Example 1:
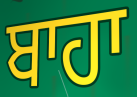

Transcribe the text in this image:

ਬਾਹਾ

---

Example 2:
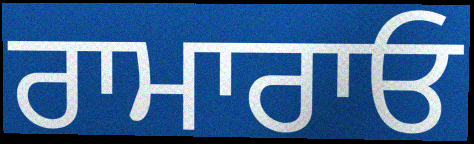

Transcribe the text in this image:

ਰਾਮਾਰਾਓ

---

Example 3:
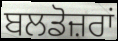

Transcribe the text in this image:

ਬਲਡੋਜ਼ਰਾਂ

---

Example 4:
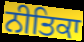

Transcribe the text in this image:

ਨੀਤਿਕਾ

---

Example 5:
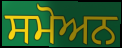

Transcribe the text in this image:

ਸਮੋਅਨ